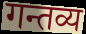
गन्तव्य